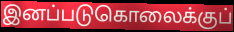
இனப்படுகொலைக்குப்